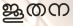
ജൂതന